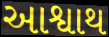
આશ્વાથ